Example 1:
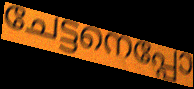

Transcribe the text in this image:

ചേട്ടനെപ്പോ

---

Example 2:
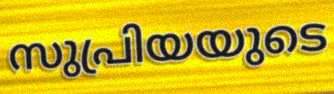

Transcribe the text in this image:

സുപ്രിയയുടെ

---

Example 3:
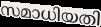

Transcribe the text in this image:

സമാധിയതി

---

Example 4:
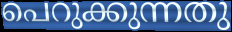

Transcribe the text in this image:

പെറുക്കുന്നതു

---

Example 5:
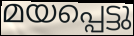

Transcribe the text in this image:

മയപ്പെട്ടു